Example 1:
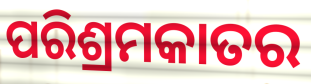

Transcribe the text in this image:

ପରିଶ୍ରମକାତର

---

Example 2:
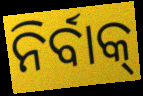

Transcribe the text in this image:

ନିର୍ବାକ୍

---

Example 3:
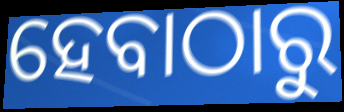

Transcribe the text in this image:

ହେବାଠାରୁ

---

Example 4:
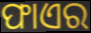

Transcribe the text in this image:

ଫାଏର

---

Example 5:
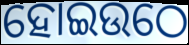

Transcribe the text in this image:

ହୋଇଉଠେ